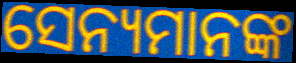
ସେନ୍ୟମାନଙ୍କ